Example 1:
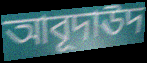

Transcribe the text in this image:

আবূদাঊদ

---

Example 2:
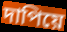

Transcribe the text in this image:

দাপিয়ে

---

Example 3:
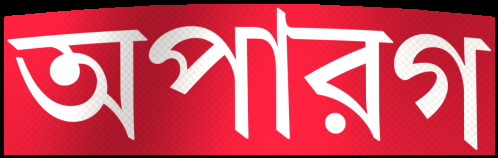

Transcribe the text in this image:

অপারগ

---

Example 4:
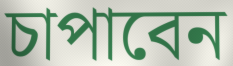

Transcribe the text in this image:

চাপাবেন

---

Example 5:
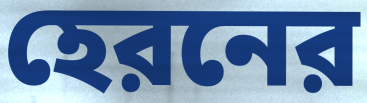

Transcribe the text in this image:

হেরনের